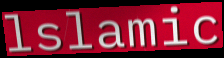
lslamic